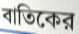
বাতিকের